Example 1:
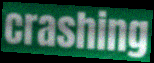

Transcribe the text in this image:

crashing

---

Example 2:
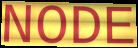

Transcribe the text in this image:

NODE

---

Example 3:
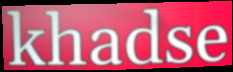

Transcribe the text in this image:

khadse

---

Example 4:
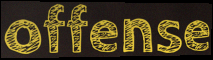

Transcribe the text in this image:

offense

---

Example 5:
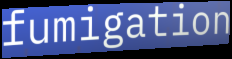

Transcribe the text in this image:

fumigation